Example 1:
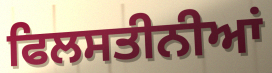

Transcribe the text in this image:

ਫਿਲਸਤੀਨੀਆਂ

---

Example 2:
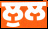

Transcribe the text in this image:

ਲੁਲ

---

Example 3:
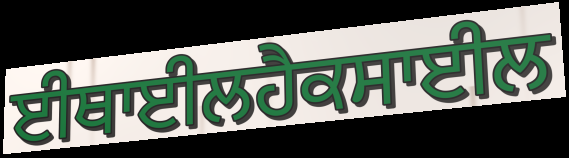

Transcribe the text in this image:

ਈਥਾਈਲਹੈਕਸਾਈਲ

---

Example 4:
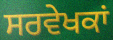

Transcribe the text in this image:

ਸਰਵੇਖਕਾਂ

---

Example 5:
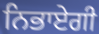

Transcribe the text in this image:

ਨਿਭਾਏਗੀ